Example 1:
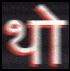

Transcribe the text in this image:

थो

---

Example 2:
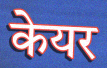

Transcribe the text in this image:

केयर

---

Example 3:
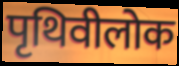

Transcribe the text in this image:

पृथिवीलोक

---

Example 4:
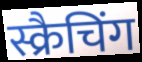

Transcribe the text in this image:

स्क्रैचिंग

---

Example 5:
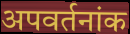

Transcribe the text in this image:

अपवर्तनांक